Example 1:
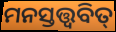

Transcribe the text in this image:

ମନସ୍ତତ୍ତ୍ଵବିତ୍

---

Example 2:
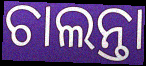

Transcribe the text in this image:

ଚାଲନ୍ତା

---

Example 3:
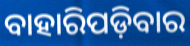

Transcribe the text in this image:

ବାହାରିପଡ଼ିବାର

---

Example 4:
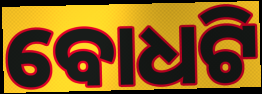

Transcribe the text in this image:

ବୋଧଟି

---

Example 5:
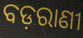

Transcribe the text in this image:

ବଡ଼ରାଣୀ